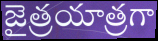
జైత్రయాత్రగా